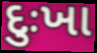
દુઃખા